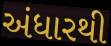
અંધારથી